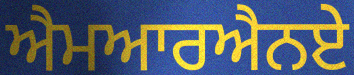
ਐਮਆਰਐਨਏ